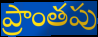
ప్రాంతపు